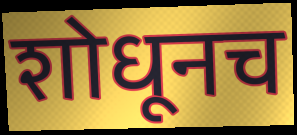
शोधूनच